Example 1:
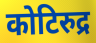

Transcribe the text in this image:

कोटिरुद्र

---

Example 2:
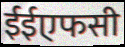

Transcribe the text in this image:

ईईएफसी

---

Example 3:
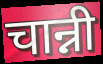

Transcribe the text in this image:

चान्नी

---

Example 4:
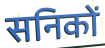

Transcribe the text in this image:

सनिकों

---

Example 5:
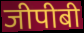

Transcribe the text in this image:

जीपीबी